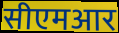
सीएमआर